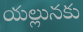
యల్లునకు